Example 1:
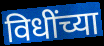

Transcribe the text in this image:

विधींच्या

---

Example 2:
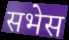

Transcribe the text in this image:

सभेस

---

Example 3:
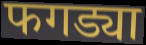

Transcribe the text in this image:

फगड्या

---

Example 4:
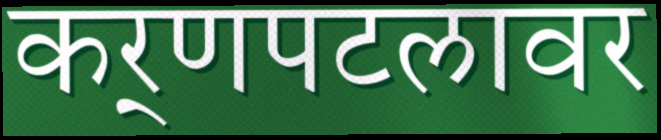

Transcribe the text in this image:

कर्णपटलावर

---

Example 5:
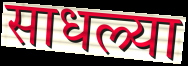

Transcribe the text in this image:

साधल्या